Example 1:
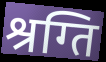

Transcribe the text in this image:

श्रग्ति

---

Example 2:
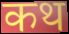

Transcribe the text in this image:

कथ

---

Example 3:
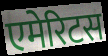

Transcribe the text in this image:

एमेरिटस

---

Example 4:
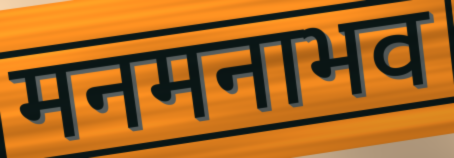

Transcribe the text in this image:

मनमनाभव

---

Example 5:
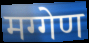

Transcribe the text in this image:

मग्गेण